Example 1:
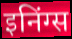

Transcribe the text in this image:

इनिंग्स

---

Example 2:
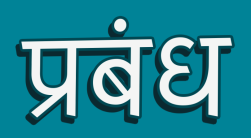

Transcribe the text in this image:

प्रबंध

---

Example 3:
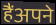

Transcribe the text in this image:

हैंअपने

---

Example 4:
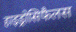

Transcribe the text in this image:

हाइड्रोसिफैलस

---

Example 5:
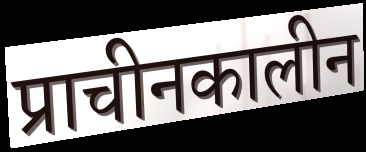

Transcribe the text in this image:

प्राचीनकालीन